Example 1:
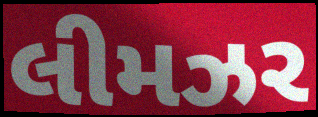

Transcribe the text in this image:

લીમઝર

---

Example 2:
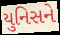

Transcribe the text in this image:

યુનિસને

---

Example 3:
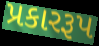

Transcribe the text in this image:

પ્રકારરૂપ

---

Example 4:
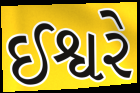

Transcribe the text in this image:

ઈશ્વરે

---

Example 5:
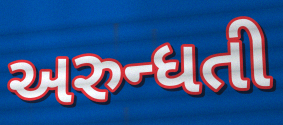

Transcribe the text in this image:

અરુન્ધતી